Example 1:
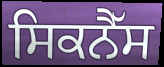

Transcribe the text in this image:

ਸਿਕਨੈੱਸ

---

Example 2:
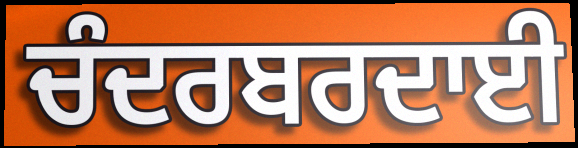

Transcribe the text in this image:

ਚੰਦਰਬਰਦਾਈ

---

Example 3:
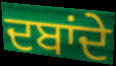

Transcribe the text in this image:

ਦਬਾਂਦੇ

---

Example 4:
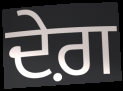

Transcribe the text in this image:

ਦੇਗ਼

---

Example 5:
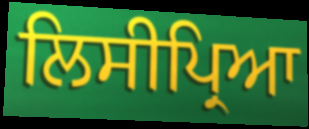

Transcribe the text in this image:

ਲਿਸੀਪ੍ਰਿਆ